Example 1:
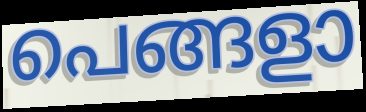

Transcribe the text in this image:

പെങ്ങളാ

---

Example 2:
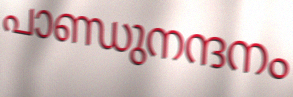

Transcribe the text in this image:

പാണ്ഡുനന്ദനം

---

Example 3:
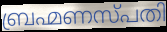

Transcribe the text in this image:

ബ്രഹ്മണസ്പതി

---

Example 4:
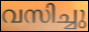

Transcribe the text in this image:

വസിച്ചു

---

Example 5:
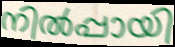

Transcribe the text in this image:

നിൽപ്പായി